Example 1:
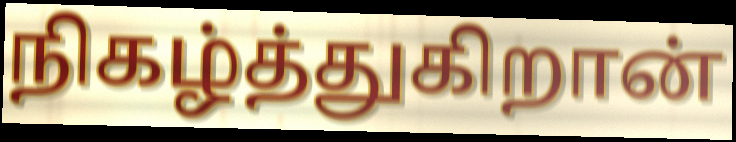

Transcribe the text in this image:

நிகழ்த்துகிறான்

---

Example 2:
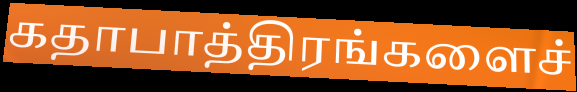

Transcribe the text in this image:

கதாபாத்திரங்களைச்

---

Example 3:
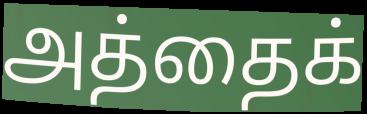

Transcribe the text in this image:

அத்தைக்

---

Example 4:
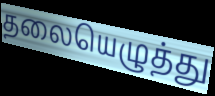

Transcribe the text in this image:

தலையெழுத்து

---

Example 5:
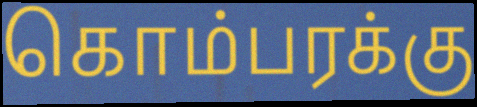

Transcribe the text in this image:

கொம்பரக்கு